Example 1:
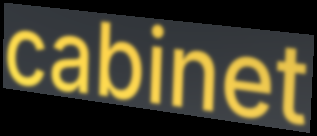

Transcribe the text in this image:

cabinet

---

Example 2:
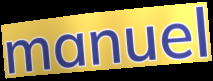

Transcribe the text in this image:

manuel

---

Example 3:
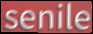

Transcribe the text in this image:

senile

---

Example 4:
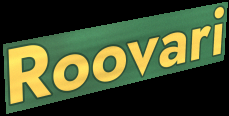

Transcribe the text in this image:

Roovari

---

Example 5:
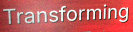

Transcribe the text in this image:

Transforming